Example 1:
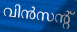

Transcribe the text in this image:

വിൻസന്റ്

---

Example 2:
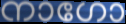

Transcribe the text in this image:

നാഗോ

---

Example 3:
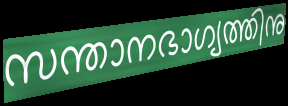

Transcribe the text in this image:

സന്താനഭാഗ്യത്തിനു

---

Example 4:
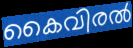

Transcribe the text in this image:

കൈവിരൽ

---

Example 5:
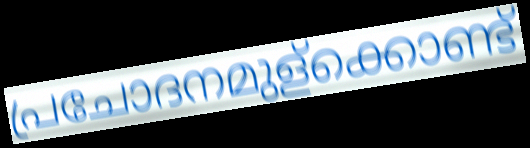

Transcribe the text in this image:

പ്രചോദനമുള്ക്കൊണ്ട്